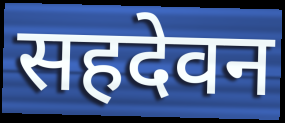
सहदेवन